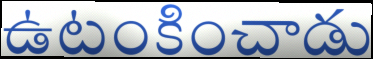
ఉటంకించాడు